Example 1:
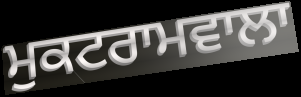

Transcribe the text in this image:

ਮੁਕਟਰਾਮਵਾਲਾ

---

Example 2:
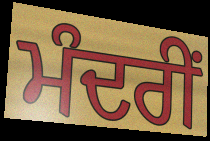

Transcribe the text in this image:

ਮੰਦਰੀਂ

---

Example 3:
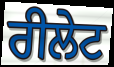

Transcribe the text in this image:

ਰੀਲੇਟ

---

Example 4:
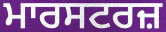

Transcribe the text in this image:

ਮਾਰਸਟਰਜ਼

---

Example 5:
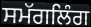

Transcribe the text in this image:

ਸਮੱਗਲਿੰਗ